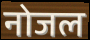
नोजल